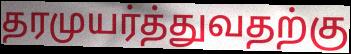
தரமுயர்த்துவதற்கு